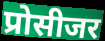
प्रोसीजर